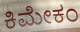
ಕಿಮೇಕಂ